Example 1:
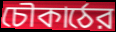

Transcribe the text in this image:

চৌকাঠের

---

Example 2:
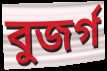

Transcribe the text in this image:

বুজর্গ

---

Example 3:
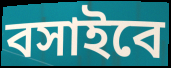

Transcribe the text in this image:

বসাইবে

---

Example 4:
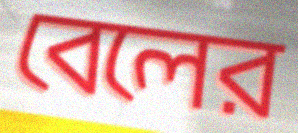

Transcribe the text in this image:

বেলের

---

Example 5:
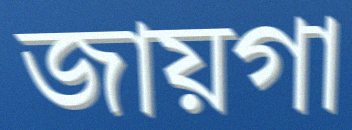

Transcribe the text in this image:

জায়গা